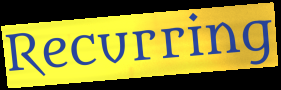
Recurring